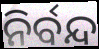
ନିର୍ବନ୍ଦ